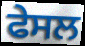
ਫੇਸਲ